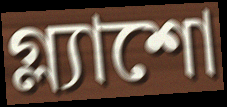
গ্ল্যাশো